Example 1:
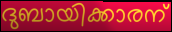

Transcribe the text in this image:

ദുബായിക്കാരന്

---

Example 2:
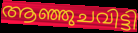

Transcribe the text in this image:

ആഞ്ഞുചവിട്ടി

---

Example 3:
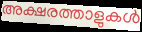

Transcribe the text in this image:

അക്ഷരത്താളുകൾ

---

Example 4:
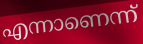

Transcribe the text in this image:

എന്നാണെന്ന്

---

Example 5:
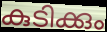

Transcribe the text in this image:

കുടിക്കും